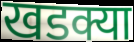
खडक्या